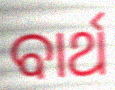
ବାର୍ଥ